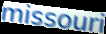
missouri